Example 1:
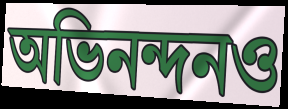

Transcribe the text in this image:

অভিনন্দনও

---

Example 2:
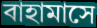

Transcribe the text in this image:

বাহামাসে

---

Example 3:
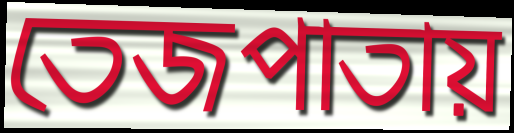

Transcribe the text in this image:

তেজপাতায়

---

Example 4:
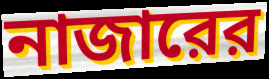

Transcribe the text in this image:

নাজারের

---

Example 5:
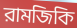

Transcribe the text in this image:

রামজিকি